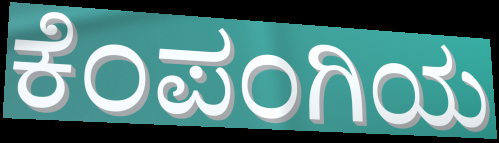
ಕೆಂಪಂಗಿಯ